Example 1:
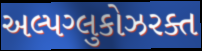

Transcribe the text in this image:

અલ્પગ્લુકોઝરક્ત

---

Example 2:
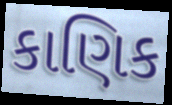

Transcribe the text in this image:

કાણિક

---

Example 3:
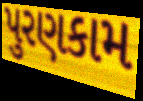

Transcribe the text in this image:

પુરણકામ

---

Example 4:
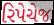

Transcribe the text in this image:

રિપેચેજ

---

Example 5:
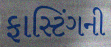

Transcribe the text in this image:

ફાસ્ટિંગની